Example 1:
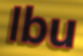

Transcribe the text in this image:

Ibu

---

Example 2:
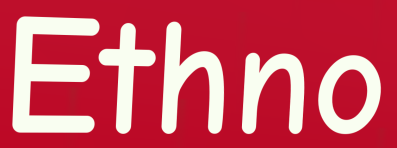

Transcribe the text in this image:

Ethno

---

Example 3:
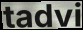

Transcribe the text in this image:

tadvi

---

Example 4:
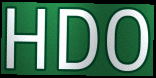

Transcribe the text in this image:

HDO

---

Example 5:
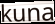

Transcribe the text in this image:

kuna